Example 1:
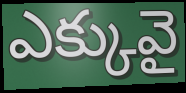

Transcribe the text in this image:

ఎక్కువై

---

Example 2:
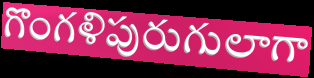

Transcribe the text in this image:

గొంగళిపురుగులాగా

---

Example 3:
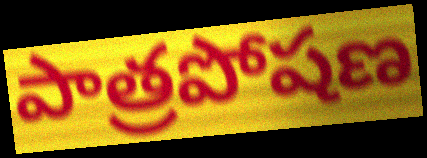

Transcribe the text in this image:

పాత్రపోషణ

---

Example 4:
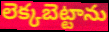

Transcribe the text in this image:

లెక్కబెట్టాను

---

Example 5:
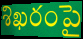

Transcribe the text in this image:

శిఖరంపై